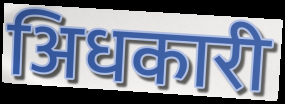
अिधकारी